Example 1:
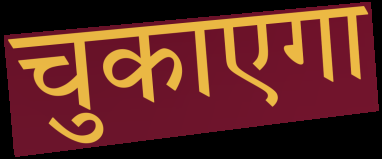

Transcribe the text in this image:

चुकाएगा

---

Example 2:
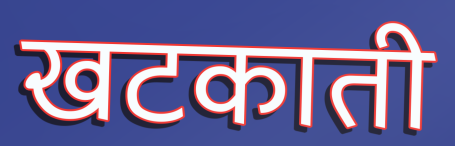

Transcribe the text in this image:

खटकाती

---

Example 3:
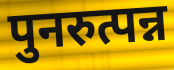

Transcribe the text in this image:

पुनरुत्पन्न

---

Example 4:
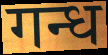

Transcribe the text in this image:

गन्‍ध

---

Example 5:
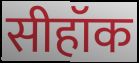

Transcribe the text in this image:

सीहॉक